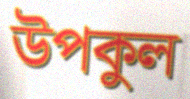
উপকুল